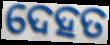
ଦେହତ